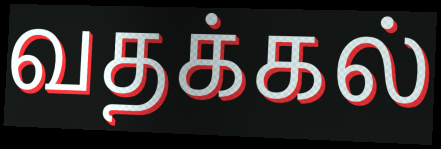
வதக்கல்